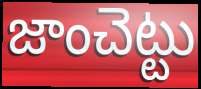
జాంచెట్టు